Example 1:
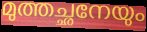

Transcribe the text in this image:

മുത്തച്ഛനേയും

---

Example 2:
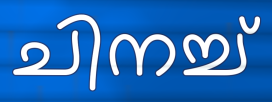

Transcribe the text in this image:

ചിനച്ച്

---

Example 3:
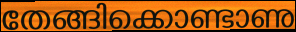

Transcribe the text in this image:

തേങ്ങിക്കൊണ്ടാണു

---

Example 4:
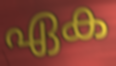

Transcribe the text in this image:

ഏക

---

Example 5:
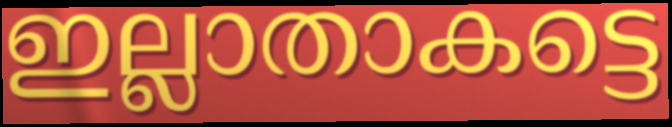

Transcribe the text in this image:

ഇല്ലാതാകട്ടെ